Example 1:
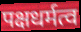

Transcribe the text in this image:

पक्षधर्मत्व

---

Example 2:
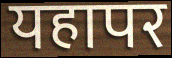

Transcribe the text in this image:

यहापर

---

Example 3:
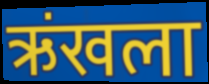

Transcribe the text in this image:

ऋंखला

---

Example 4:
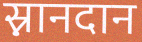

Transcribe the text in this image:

स्नानदान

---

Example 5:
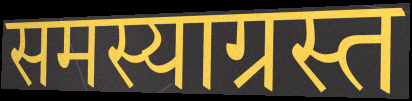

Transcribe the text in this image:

समस्याग्रस्त